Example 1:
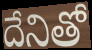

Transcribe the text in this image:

దేనితో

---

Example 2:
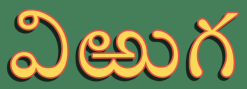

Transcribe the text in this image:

విఱుగ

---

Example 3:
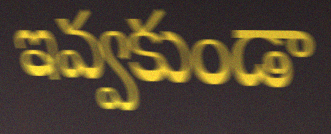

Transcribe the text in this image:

ఇవ్వకుండా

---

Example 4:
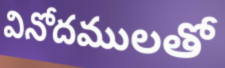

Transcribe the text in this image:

వినోదములతో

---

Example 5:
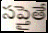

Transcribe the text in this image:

సప్తైతే